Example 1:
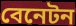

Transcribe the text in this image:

বেনেটন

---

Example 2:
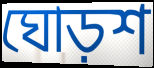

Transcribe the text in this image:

ঘোড়শ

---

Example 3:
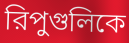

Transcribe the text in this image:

রিপুগুলিকে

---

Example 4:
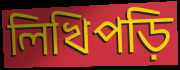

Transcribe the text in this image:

লিখিপড়ি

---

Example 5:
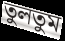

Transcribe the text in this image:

তুলতুম